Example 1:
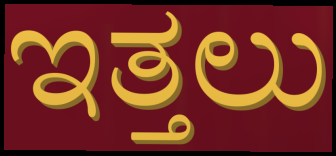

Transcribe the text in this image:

ಇತ್ತಲು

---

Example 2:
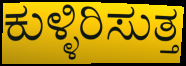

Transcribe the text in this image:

ಕುಳ್ಳಿರಿಸುತ್ತ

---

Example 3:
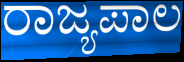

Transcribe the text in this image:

ರಾಜ್ಯಪಾಲ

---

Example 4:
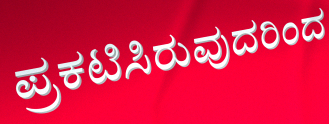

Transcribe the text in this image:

ಪ್ರಕಟಿಸಿರುವುದರಿಂದ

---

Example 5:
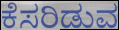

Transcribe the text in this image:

ಕೆಸರಿಡುವ